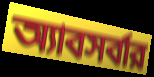
অ্যাবসর্বার